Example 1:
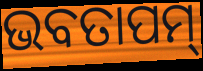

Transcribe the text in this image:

ଭବତାପମ୍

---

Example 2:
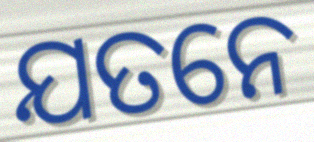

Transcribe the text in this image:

ଯତନେ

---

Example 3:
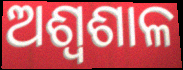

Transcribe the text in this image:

ଅଶ୍ୱଶାଳ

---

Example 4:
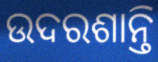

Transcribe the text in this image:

ଉଦରଶାନ୍ତି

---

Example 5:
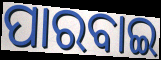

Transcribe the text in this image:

ପାରବାଇ